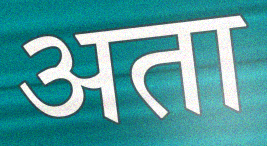
अता